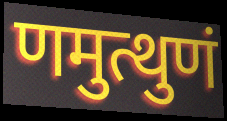
णमुत्थुणं